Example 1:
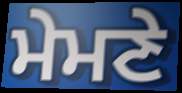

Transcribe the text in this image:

ਮੇਮਣੇ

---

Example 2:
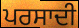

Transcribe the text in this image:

ਪਰਸਾਦੀ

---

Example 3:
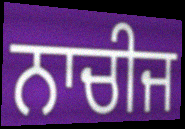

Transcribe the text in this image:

ਨਾਚੀਜ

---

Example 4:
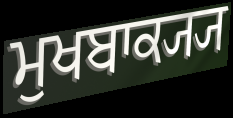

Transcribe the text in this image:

ਮੁਖਬਾਕ੍ਯ੍ਯ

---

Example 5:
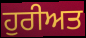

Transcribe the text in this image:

ਹੁਰੀਅਤ